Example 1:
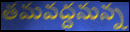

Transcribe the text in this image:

తమవద్దనున్న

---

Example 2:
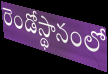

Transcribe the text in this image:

రెండోస్థానంలో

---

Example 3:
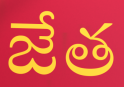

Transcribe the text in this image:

జేత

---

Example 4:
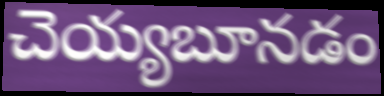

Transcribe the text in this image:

చెయ్యబూనడం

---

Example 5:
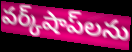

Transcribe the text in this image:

వర్క్‌షాప్‌లను